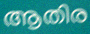
ആതിര